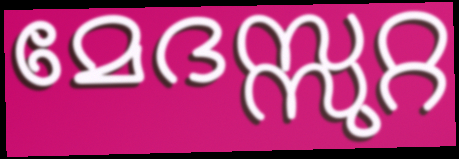
മേദസ്സുറ്റ